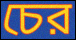
চের